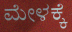
ಮೇಳಕ್ಕೆ